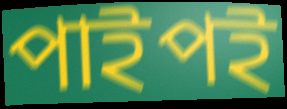
পাইপই